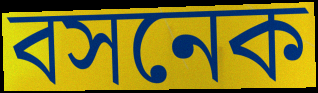
বসনেক